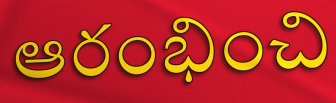
ఆరంభించి